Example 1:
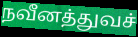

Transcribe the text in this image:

நவீனத்துவச்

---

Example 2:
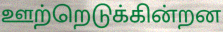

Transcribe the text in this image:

ஊற்றெடுக்கின்றன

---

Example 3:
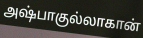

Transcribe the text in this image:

அஷ்பாகுல்லாகான்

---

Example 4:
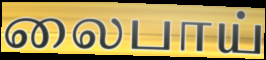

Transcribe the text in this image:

லைபாய்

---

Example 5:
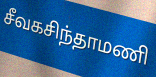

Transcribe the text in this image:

சீவகசிந்தாமணி